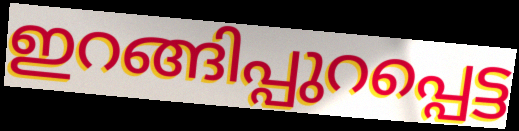
ഇറങ്ങിപ്പുറപ്പെട്ട